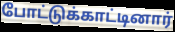
போட்டுக்காட்டினார்